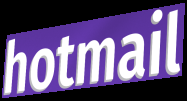
hotmail